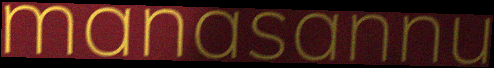
manasannu